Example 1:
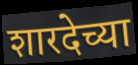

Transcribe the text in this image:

शारदेच्या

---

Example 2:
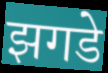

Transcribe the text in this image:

झगडे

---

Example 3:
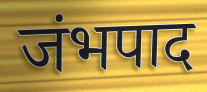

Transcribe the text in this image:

जंभपाद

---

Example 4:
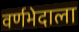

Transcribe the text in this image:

वर्णभेदाला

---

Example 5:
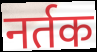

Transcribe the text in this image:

नर्तक